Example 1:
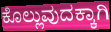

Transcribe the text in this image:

ಕೊಲ್ಲುವುದಕ್ಕಾಗಿ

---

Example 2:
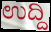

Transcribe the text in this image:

ಉದ್ದಿ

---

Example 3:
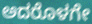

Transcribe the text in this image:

ಅದರೊಳಗೇ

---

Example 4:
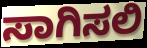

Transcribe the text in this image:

ಸಾಗಿಸಲಿ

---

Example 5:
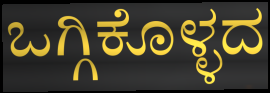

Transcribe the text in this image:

ಒಗ್ಗಿಕೊಳ್ಳದ